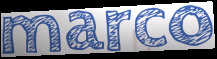
marco